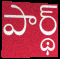
పార్థ్